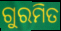
ଗୁରମିତ